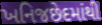
ખનિજછેદમાંથી